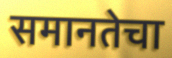
समानतेचा